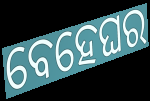
ବେହେଘର